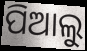
ପିଆଲୁ